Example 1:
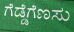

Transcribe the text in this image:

ಗೆಡ್ಡೆಗೆಣಸು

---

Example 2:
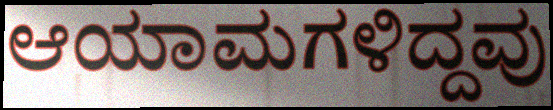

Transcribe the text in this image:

ಆಯಾಮಗಳಿದ್ದವು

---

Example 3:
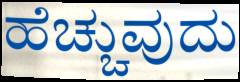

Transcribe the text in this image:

ಹೆಚ್ಚುವುದು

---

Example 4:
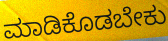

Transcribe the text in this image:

ಮಾಡಿಕೊಡಬೇಕು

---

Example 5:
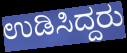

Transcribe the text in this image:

ಉಡಿಸಿದ್ದರು